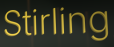
Stirling